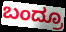
ಬಂದ್ರೂ